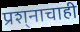
प्रश्नाचाही